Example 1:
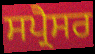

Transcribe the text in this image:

ਸਪ੍ਰੈਸਰ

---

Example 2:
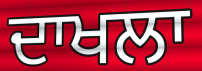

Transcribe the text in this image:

ਦਾਖਲਾ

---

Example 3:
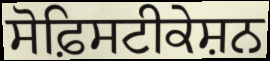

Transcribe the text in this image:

ਸੋਫ਼ਿਸਟੀਕੇਸ਼ਨ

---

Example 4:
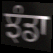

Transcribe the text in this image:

ਝੰਡਾ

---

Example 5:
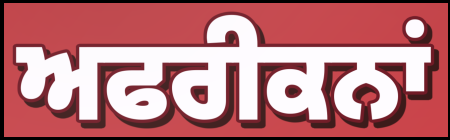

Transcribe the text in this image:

ਅਫਰੀਕਨਾਂ